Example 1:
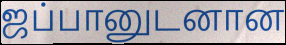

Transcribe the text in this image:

ஜப்பானுடனான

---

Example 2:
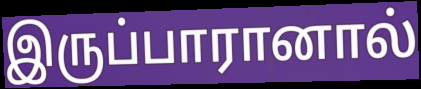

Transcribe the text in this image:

இருப்பாரானால்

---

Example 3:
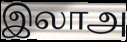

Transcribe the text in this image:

இலாஅ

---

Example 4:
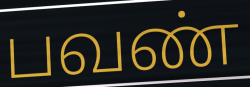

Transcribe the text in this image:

பவண்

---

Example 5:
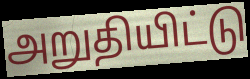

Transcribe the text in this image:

அறுதியிட்டு